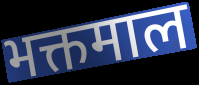
भक्तमाल